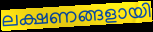
ലക്ഷണങ്ങളായി